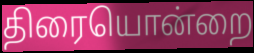
திரையொன்றை